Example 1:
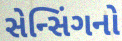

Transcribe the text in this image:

સેન્સિંગનો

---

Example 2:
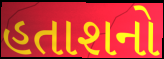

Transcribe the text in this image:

હતાશનો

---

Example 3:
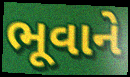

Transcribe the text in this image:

ભૂવાને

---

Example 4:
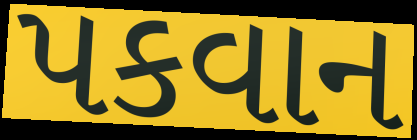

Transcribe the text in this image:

પકવાન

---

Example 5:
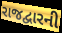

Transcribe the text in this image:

રાજદ્વારની